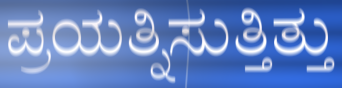
ಪ್ರಯತ್ನಿಸುತ್ತಿತ್ತು